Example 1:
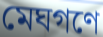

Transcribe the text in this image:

মেঘগণে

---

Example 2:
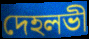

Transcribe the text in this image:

দেহলভী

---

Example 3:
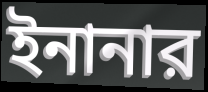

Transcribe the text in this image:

ইনানার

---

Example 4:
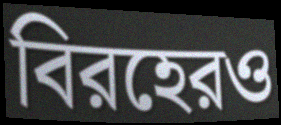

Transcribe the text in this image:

বিরহেরও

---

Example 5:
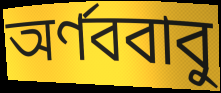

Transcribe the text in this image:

অর্ণববাবু